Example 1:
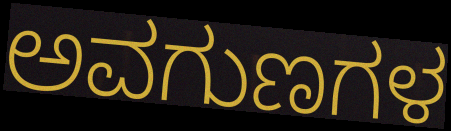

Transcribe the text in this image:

ಅವಗುಣಗಳ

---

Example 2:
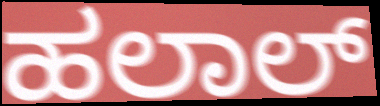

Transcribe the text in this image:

ಹಲಾಲ್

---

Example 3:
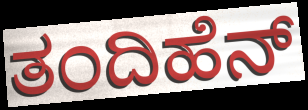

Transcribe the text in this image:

ತಂದಿಹೆನ್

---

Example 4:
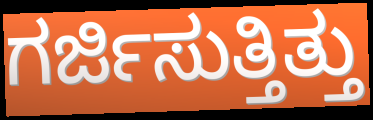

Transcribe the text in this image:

ಗರ್ಜಿಸುತ್ತಿತ್ತು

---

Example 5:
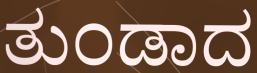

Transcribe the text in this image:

ತುಂಡಾದ